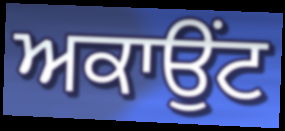
ਅਕਾਉਂਟ